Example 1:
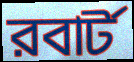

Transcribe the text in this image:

রবার্ট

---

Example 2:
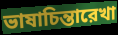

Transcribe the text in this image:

ভাষাচিন্তারেখা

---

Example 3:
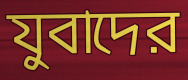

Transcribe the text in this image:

যুবাদের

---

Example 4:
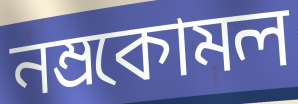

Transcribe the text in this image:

নম্রকোমল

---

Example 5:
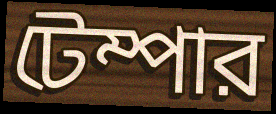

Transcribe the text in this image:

টেম্পার